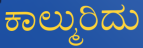
ಕಾಲ್ಮುರಿದು